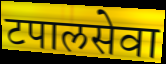
टपालसेवा